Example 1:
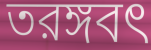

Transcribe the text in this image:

তরঙ্গবৎ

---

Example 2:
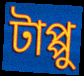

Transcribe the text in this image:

টাপ্পু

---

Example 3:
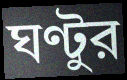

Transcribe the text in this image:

ঘণ্টুর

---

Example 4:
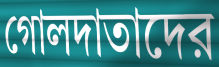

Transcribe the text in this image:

গোলদাতাদের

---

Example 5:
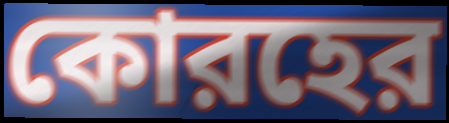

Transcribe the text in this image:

কোরহের